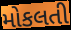
મોકલતી